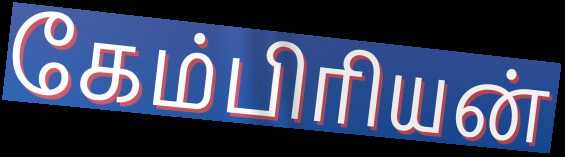
கேம்பிரியன்